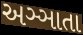
અઞ્ઞાતા